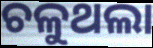
ଚଳୁଥଲା